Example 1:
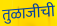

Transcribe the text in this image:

तुळाजीची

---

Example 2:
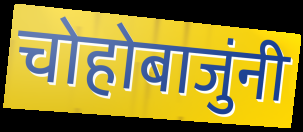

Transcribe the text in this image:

चोहोबाजुंनी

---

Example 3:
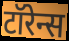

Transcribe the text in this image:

टॉरेन्स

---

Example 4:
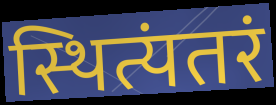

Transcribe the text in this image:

स्थित्यंतरं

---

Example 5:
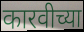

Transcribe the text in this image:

कारवीच्या